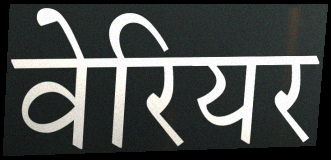
वेरियर